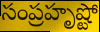
సంప్రహృష్టో